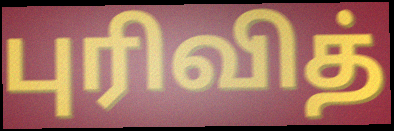
புரிவித்